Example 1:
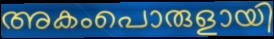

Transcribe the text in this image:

അകംപൊരുളായി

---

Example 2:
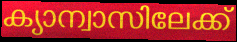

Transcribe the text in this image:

ക്യാന്വാസിലേക്ക്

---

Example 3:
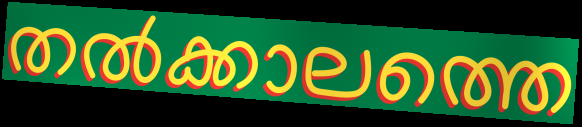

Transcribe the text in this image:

തൽക്കാലത്തെ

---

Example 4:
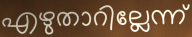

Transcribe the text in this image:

എഴുതാറില്ലേന്ന്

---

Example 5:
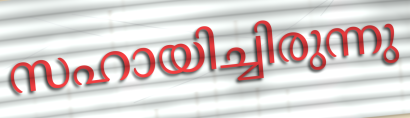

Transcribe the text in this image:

സഹായിച്ചിരുന്നു